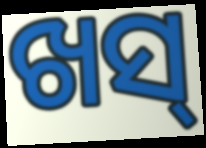
ଖସ୍